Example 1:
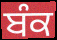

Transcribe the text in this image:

ਬੰਕ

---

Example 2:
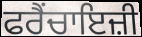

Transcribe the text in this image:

ਫਰੈਂਚਾਇਜ਼ੀ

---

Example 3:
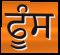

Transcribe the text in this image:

ਫੂੰਸ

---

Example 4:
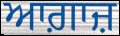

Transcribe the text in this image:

ਆਗ਼ਾਜ਼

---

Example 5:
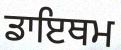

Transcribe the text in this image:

ਡਾਇਥਮ